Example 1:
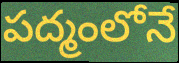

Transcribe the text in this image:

పద్మంలోనే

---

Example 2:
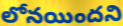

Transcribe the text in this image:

లోనయిందని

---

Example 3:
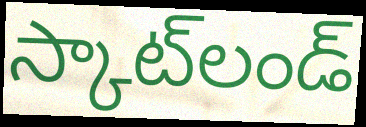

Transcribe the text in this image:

స్కాట్‌లండ్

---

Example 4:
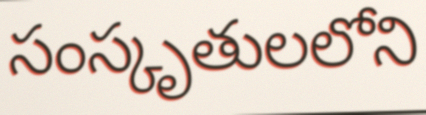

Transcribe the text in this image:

సంస్కృతులలోని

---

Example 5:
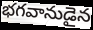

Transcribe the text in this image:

భగవానుడైన